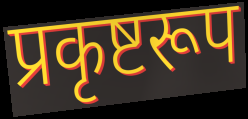
प्रकृष्टरूप